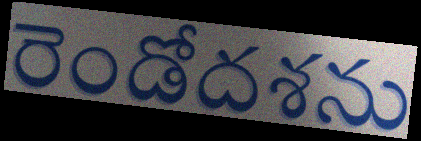
రెండోదశను